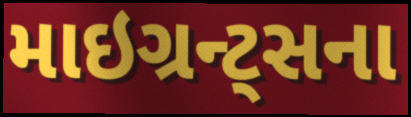
માઇગ્રન્ટ્સના